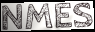
NMES